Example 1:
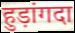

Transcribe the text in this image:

हुड़ांगदा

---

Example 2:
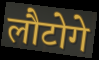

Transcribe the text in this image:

लौटोगे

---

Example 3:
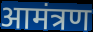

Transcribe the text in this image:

आमंत्रण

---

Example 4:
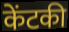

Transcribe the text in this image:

केंटकी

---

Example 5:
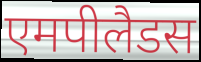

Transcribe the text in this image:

एमपीलैडस